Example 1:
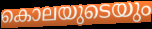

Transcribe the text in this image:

കൊലയുടെയും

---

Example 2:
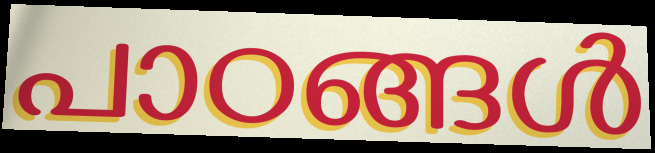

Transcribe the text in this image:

പാഠങ്ങൾ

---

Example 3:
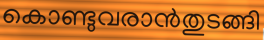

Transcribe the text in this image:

കൊണ്ടുവരാൻതുടങ്ങി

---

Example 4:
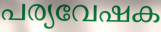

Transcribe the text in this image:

പര്യവേഷക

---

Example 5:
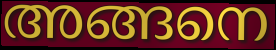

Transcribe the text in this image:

അങ്ങനെ